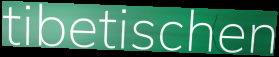
tibetischen